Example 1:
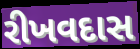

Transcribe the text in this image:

રીખવદાસ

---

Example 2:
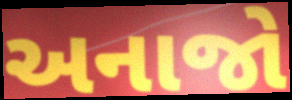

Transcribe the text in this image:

અનાજો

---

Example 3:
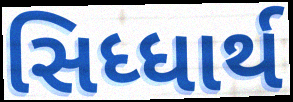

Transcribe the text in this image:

સિધ્ધાર્થ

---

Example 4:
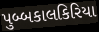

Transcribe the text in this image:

પુબ્બકાલકિરિયા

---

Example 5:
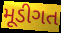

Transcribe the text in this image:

મૂડીગત